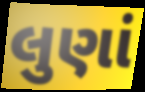
લુણાં